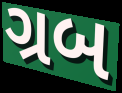
ગ્રબ